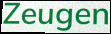
Zeugen